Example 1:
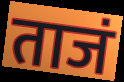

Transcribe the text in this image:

ताजं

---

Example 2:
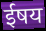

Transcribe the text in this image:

ईषय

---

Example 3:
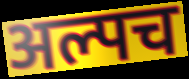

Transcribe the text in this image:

अल्पच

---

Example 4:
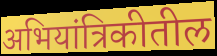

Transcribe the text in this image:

अभियांत्रिकीतील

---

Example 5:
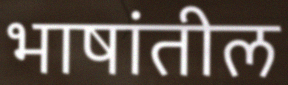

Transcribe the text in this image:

भाषांतील